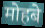
मोहबे